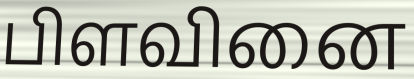
பிளவினை